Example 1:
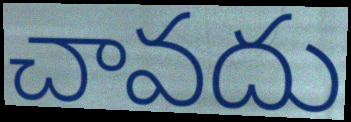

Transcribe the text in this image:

చావదు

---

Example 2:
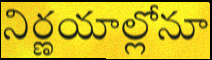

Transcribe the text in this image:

నిర్ణయాల్లోనూ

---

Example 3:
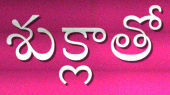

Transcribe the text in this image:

శుక్లాతో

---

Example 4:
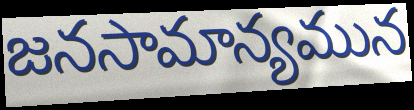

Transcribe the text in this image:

జనసామాన్యమున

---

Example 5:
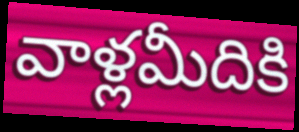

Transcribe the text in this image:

వాళ్లమీదికి